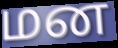
மன